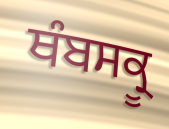
ਥੰਬਸਕ੍ਰੂ